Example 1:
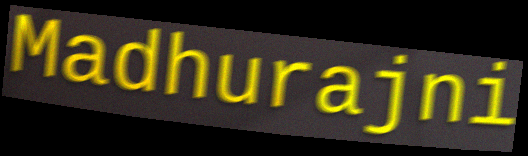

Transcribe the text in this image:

Madhurajni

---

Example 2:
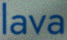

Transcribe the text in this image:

lava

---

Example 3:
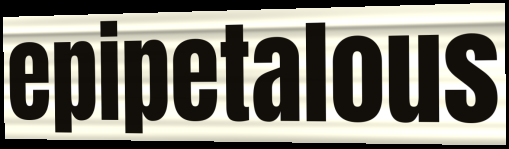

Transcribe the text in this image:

epipetalous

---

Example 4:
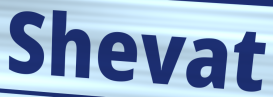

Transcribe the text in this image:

Shevat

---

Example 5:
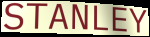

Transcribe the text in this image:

STANLEY